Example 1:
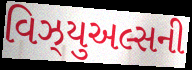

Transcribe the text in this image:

વિઝ્યુઅલ્સની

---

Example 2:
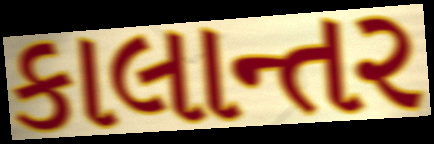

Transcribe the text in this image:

કાલાન્તર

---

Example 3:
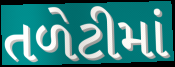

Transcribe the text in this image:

તળેટીમાં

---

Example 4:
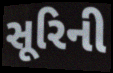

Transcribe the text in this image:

સૂરિની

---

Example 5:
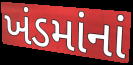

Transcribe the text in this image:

ખંડમાંનાં